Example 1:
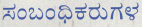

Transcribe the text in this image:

ಸಂಬಂಧಿಕರುಗಳ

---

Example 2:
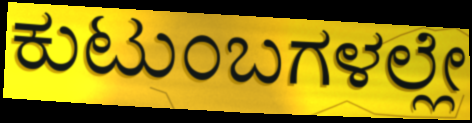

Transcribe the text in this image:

ಕುಟುಂಬಗಳಲ್ಲೇ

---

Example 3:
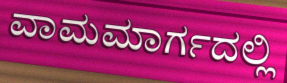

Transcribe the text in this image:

ವಾಮಮಾರ್ಗದಲ್ಲಿ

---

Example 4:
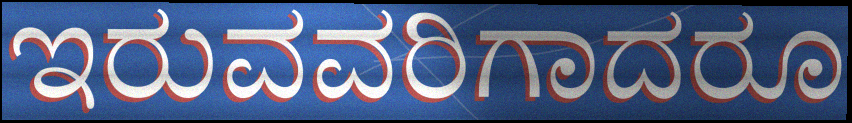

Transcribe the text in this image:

ಇರುವವರಿಗಾದರೂ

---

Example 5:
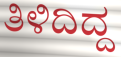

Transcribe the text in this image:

ತಿಳಿದಿದ್ದ